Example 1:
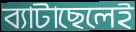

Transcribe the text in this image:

ব্যাটাছেলেই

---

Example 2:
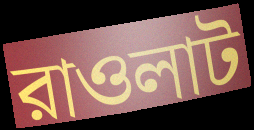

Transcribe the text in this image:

রাওলাট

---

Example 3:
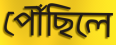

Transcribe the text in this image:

পৌঁছিলে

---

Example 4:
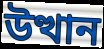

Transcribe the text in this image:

উত্থান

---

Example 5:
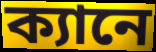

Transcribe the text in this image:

ক্যানে